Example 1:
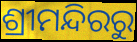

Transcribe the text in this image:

ଶ୍ରୀମନ୍ଦିରରୁ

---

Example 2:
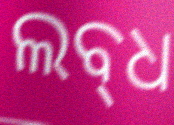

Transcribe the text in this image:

ଲବ୍‍ଧ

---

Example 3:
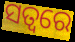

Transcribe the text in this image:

ସତ୍ଵରେ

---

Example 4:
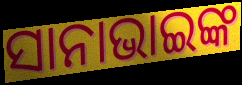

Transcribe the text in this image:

ସାନାଭାଇଙ୍କ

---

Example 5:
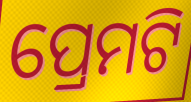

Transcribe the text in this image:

ପ୍ରେମଟି